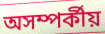
অসম্পর্কীয়